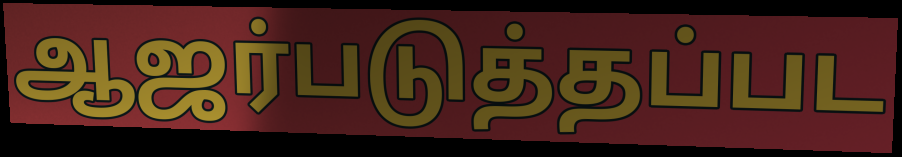
ஆஜர்படுத்தப்பட